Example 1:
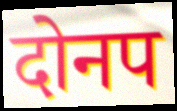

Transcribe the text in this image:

दोनप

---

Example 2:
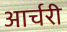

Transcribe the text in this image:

आर्चरी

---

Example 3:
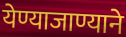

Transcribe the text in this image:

येण्याजाण्याने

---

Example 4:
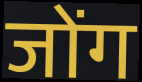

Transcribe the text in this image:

जोंग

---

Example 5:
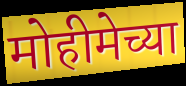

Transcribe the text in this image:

मोहीमेच्या